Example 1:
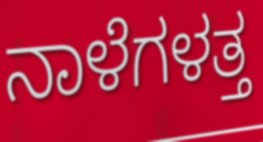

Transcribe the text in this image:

ನಾಳೆಗಳತ್ತ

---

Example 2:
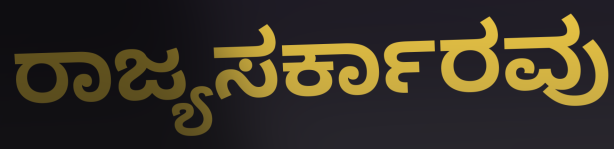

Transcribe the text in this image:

ರಾಜ್ಯಸರ್ಕಾರವು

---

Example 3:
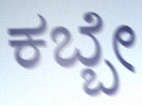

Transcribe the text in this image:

ಕಬ್ಬೇ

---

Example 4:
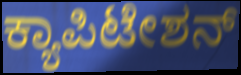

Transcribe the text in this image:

ಕ್ಯಾಪಿಟೇಶನ್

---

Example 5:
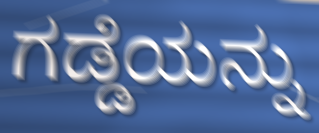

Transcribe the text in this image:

ಗಡ್ಡೆಯನ್ನು